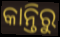
କାନ୍ତିରୁ